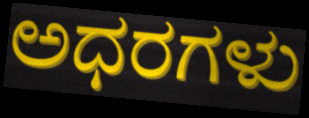
ಅಧರಗಳು